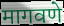
मागवणे